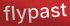
flypast